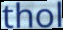
thol